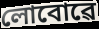
লোবোৱে